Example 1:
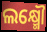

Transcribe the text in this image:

ଲକ୍ଷ୍ମୌ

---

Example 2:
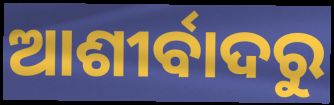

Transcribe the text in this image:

ଆଶୀର୍ବାଦରୁ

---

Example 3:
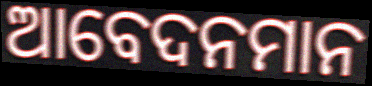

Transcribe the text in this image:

ଆବେଦନମାନ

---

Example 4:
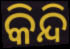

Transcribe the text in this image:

କିନ୍ଦି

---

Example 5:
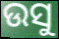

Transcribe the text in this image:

ଉସୁ